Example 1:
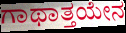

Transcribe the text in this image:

ಗಾಥಾತ್ತಯೇನ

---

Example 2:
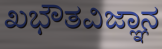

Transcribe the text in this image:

ಖಭೌತವಿಜ್ಞಾನ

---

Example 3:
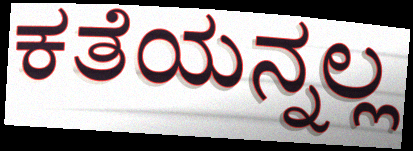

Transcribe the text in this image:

ಕತೆಯನ್ನಲ್ಲ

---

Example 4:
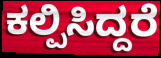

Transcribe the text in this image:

ಕಲ್ಪಿಸಿದ್ದರೆ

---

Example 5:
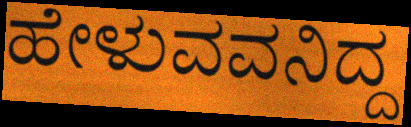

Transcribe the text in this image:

ಹೇಳುವವನಿದ್ದ